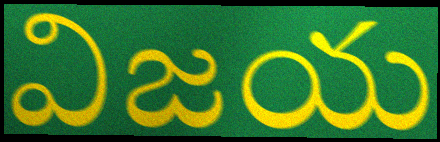
విజయ